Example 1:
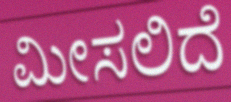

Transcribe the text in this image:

ಮೀಸಲಿದೆ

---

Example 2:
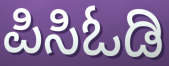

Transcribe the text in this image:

ಪಿಸಿಓಡಿ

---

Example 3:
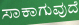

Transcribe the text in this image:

ಸಾಕಾಗುವುದೆ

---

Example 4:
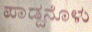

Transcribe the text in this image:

ಪಾಡ್ದನೊಳು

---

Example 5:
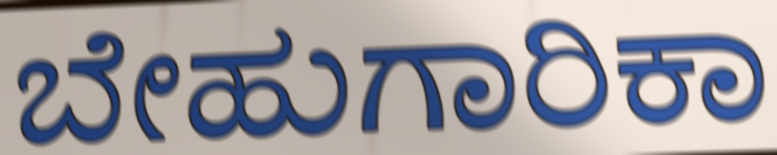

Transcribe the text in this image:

ಬೇಹುಗಾರಿಕಾ